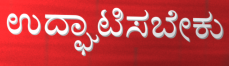
ಉದ್ಘಾಟಿಸಬೇಕು